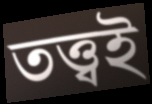
তত্ত্বই